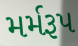
મર્મરૂપ